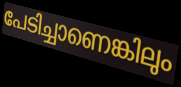
പേടിച്ചാണെങ്കിലും